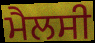
ਮੈਲਸੀ